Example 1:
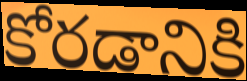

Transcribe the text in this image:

కోరడానికి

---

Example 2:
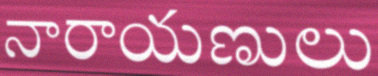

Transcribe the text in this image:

నారాయణులు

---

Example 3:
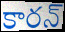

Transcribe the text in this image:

కారన్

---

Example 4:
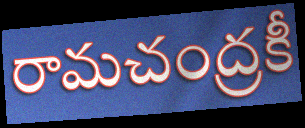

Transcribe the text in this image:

రామచంద్రకీ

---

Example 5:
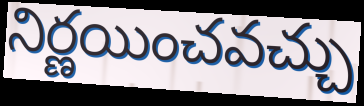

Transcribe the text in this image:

నిర్ణయించవచ్చు